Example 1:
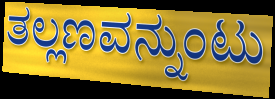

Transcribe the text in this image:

ತಲ್ಲಣವನ್ನುಂಟು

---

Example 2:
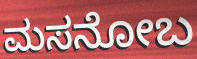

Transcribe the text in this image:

ಮಸನೋಬ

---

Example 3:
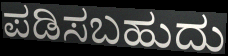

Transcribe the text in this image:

ಪಡಿಸಬಹುದು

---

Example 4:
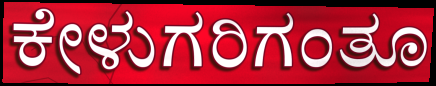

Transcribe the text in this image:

ಕೇಳುಗರಿಗಂತೂ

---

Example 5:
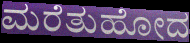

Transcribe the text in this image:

ಮರೆತುಹೋದ